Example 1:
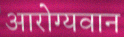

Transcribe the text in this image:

आरोग्यवान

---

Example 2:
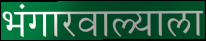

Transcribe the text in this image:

भंगारवाल्याला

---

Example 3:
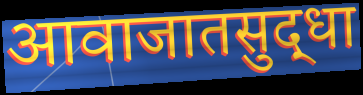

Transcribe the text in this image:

आवाजातसुद्धा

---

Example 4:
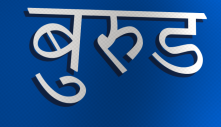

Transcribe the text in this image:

बुरुड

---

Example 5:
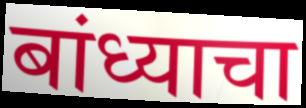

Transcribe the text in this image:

बांध्याचा